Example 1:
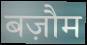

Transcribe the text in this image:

बज़ौम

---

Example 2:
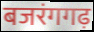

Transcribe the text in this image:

बजरंगगढ़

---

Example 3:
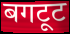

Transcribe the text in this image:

बगटूट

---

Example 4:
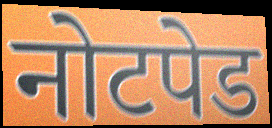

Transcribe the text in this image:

नोटपेड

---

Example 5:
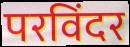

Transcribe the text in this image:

परविंदर